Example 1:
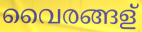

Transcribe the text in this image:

വൈരങ്ങള്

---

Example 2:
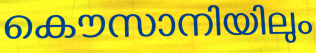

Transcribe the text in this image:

കൌസാനിയിലും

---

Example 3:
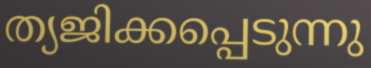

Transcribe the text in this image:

ത്യജിക്കപ്പെടുന്നു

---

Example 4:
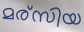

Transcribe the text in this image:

മര്സിയ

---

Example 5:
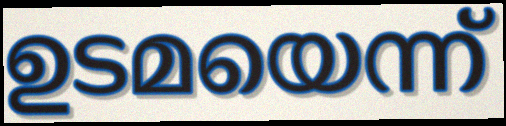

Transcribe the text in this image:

ഉടമയെന്ന്